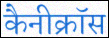
कैनीक्रॉस